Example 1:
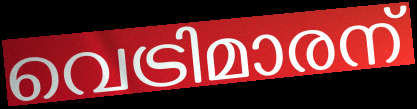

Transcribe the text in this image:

വെട്രിമാരന്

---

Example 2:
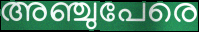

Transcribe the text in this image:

അഞ്ചുപേരെ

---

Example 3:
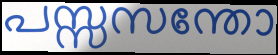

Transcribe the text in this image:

പസ്സസന്തോ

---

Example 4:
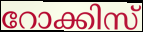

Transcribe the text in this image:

റോക്കിസ്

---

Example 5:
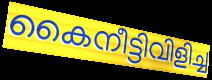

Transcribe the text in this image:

കൈനീട്ടിവിളിച്ച